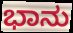
ಭಾನು